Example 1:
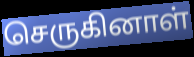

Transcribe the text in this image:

செருகினாள்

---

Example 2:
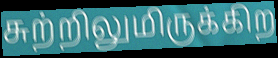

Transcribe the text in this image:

சுற்றிலுமிருக்கிற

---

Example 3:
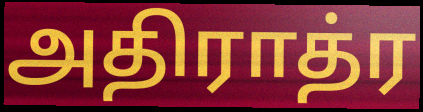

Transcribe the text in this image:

அதிராத்ர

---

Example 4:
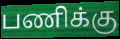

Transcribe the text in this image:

பணிக்கு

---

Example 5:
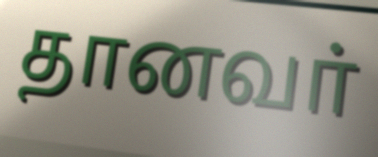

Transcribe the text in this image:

தானவர்